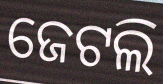
ଜେଟଲି